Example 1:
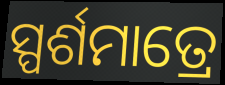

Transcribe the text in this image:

ସ୍ପର୍ଶମାତ୍ରେ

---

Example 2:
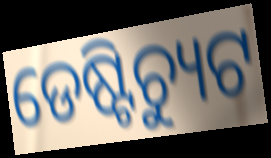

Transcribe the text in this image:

ଡେଷ୍ଟିଚ୍ୟୁଟ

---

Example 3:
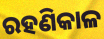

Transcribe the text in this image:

ରହଣିକାଳ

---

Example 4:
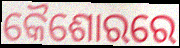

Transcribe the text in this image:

କୈଶୋରରେ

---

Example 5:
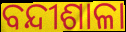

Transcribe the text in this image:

ବନ୍ଦୀଶାଳା